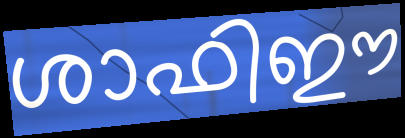
ശാഫിഈ